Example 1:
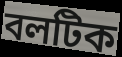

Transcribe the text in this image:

বলটিক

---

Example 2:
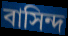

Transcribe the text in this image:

বাসিন্দ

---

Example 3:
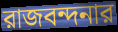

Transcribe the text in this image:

রাজবন্দনার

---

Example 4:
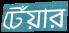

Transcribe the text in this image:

টেঁয়ার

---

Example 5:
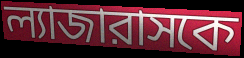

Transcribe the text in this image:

ল্যাজারাসকে